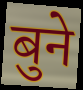
बुने